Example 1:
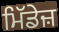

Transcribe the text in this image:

ਮਿੱਡੇਜ਼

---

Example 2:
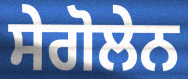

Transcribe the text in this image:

ਸੇਗੋਲੇਨ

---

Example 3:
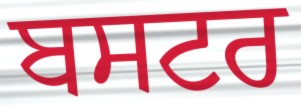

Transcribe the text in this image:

ਬਸਟਰ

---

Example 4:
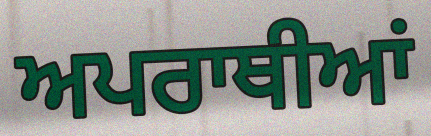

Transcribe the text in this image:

ਅਪਰਾਥੀਆਂ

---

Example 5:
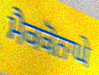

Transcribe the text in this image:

ਮੈਕਕੋਨਾਘੇ